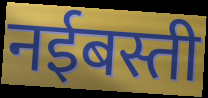
नईबस्ती